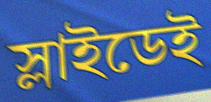
স্লাইডেই